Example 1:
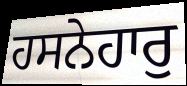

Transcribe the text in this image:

ਹਸਨੇਹਾਰੁ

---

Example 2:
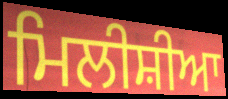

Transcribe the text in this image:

ਮਿਲੀਸ਼ੀਆ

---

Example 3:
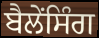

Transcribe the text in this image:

ਬੈਲੇਂਸਿੰਗ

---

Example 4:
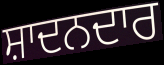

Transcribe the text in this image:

ਸ਼ਾਦਨਦਾਰ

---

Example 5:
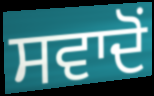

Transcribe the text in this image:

ਸਵਾਦੋਂ